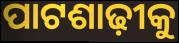
ପାଟଶାଢ଼ୀକୁ